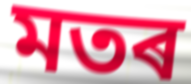
মতৰ